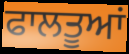
ਫਾਲਤੂਆਂ